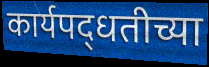
कार्यपद्धतीच्या